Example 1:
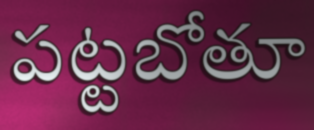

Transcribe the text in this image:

పట్టబోతూ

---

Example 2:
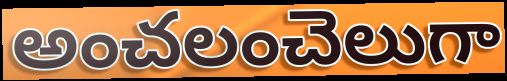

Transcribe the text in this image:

అంచలంచెలుగా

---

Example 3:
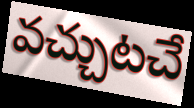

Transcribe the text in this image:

వచ్చుటచే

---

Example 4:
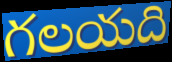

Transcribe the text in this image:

గలయది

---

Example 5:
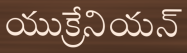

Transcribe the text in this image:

యుక్రేనియన్